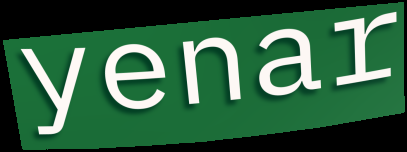
yenar